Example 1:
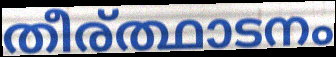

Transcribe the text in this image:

തീര്ത്ഥാടനം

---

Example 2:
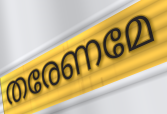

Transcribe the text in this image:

തരേണമേ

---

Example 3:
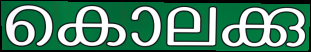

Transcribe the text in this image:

കൊലക്കു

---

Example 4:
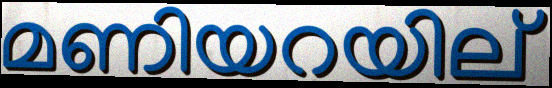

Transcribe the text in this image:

മണിയറയില്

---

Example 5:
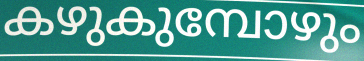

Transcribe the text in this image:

കഴുകുമ്പോഴും